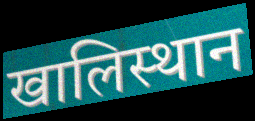
खालिस्थान